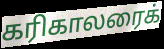
கரிகாலரைக்